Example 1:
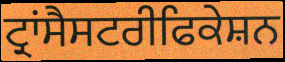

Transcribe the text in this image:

ਟ੍ਰਾਂਸੈਸਟਰੀਫਿਕੇਸ਼ਨ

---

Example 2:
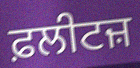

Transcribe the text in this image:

ਫ਼ਲੀਟਜ਼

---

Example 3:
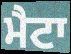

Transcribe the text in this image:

ਮੈਟਾ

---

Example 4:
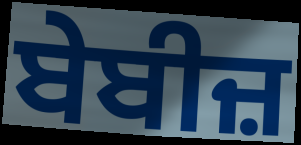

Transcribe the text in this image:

ਬੇਬੀਜ਼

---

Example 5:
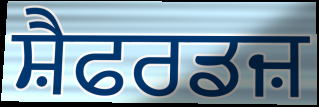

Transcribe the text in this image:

ਸ਼ੈਫਰਡਜ਼